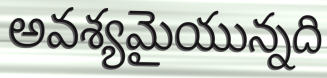
అవశ్యమైయున్నది